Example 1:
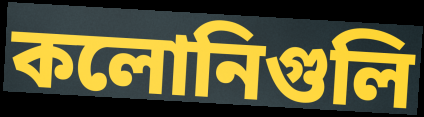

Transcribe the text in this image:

কলোনিগুলি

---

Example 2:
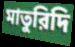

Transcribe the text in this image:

মাতুরিদি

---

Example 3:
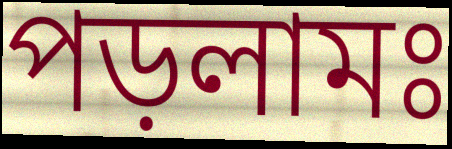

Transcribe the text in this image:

পড়লামঃ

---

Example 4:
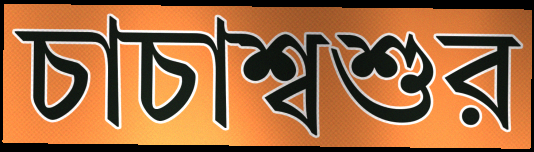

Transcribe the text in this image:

চাচাশ্বশুর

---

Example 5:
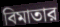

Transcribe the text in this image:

বিমাতার